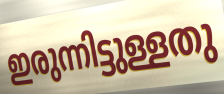
ഇരുന്നിട്ടുള്ളതു